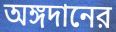
অঙ্গদানের